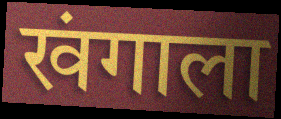
खंगाला